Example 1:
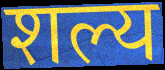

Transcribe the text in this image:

शल्य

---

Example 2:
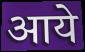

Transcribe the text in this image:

आये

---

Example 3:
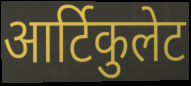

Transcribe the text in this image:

आर्टिकुलेट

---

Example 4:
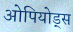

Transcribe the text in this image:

ओपियोड्स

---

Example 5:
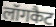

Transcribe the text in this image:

लॉगकैट